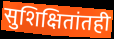
सुशिक्षितांतही